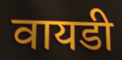
वायडी